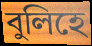
বুলিহে